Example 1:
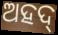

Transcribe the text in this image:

ଅହଦ୍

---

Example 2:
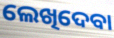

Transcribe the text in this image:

ଲେଖିଦେବା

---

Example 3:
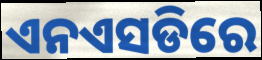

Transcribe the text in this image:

ଏନଏସଡିରେ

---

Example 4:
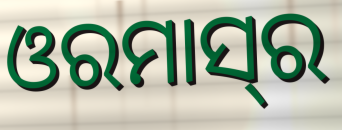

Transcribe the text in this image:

ଓରମାସ୍‌ର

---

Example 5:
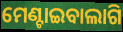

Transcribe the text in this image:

ମେଣ୍ଟାଇବାଲାଗି